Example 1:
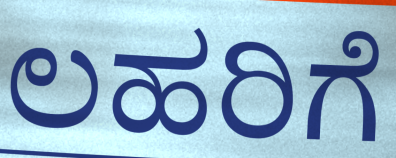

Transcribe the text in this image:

ಲಹರಿಗೆ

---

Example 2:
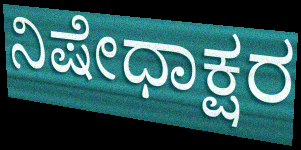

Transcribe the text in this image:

ನಿಷೇಧಾಕ್ಷರ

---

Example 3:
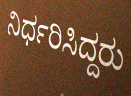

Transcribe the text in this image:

ನಿರ್ಧರಿಸಿದ್ದರು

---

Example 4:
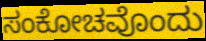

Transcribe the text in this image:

ಸಂಕೋಚವೊಂದು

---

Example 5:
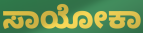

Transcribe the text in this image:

ಸಾಯೋಕಾ